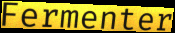
Fermenter